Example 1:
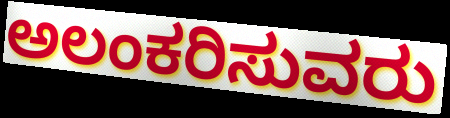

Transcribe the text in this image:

ಅಲಂಕರಿಸುವರು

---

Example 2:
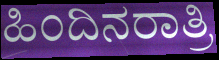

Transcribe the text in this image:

ಹಿಂದಿನರಾತ್ರಿ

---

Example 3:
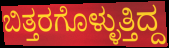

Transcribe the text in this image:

ಬಿತ್ತರಗೊಳ್ಳುತ್ತಿದ್ದ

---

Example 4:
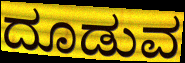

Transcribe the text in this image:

ದೂಡುವ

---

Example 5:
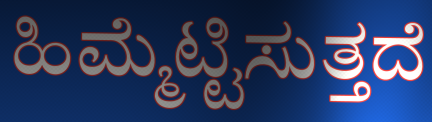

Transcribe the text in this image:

ಹಿಮ್ಮೆಟ್ಟಿಸುತ್ತದೆ